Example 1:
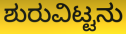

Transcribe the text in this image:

ಶುರುವಿಟ್ಟನು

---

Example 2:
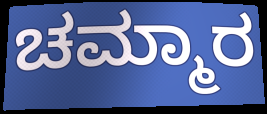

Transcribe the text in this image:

ಚಮ್ಮಾರ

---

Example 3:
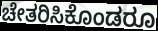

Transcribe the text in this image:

ಚೇತರಿಸಿಕೊಂಡರೂ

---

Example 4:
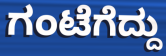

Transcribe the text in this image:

ಗಂಟೆಗೆದ್ದು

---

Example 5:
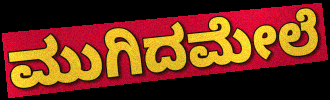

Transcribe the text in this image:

ಮುಗಿದಮೇಲೆ